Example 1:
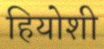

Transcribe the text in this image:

हियोशी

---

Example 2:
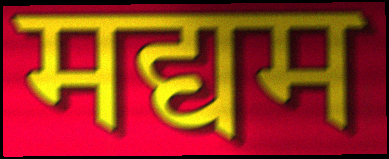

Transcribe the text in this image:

मद्यम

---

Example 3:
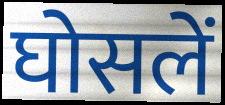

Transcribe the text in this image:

घोसलें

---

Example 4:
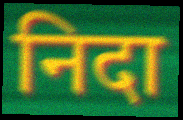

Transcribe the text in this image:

निदा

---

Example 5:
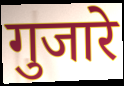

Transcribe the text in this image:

गुजारे